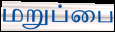
மறுப்பை